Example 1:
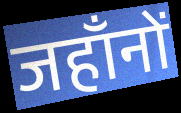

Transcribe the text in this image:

जहाँनों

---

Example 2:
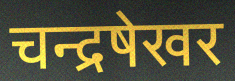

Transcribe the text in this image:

चन्द्रषेखर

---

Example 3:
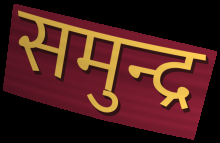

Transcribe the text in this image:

समुन्द्र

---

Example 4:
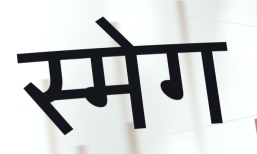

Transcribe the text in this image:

स्मेग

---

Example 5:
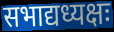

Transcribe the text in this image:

सभाद्यध्यक्षः